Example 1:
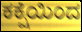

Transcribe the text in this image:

ಕಕ್ಷೆಯಿಂದ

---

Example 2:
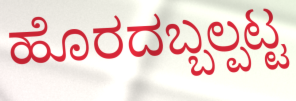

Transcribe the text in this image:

ಹೊರದಬ್ಬಲ್ಪಟ್ಟ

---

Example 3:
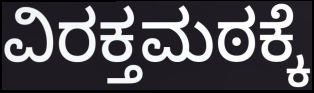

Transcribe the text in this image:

ವಿರಕ್ತಮಠಕ್ಕೆ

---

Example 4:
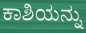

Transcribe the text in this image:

ಕಾಶಿಯನ್ನು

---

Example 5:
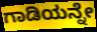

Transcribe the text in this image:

ಗಾಡಿಯನ್ನೇ